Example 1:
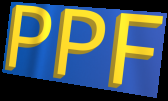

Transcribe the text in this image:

PPF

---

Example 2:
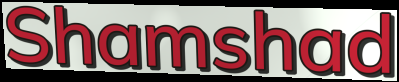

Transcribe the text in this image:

Shamshad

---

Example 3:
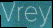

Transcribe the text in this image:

Vrey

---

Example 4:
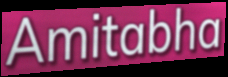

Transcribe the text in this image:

Amitabha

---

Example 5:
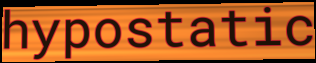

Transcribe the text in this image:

hypostatic